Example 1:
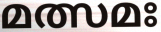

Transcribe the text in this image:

മത്സമഃ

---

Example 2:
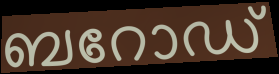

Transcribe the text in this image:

ബറോഡ്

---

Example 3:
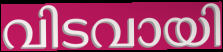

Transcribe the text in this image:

വിടവായി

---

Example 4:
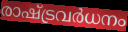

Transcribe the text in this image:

രാഷ്ട്രവർധനം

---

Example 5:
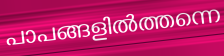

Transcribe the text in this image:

പാപങ്ങളിൽത്തന്നെ